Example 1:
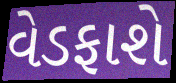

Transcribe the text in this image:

વેડફાશે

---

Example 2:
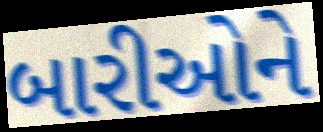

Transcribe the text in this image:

બારીઓને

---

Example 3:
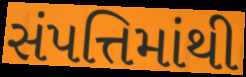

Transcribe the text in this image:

સંપત્તિમાંથી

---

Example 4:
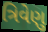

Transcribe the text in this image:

ત્રિવેણુ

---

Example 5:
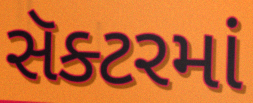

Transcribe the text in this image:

સૅક્ટરમાં